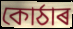
কোঠাৰ